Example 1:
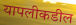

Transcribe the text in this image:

यापलीकडील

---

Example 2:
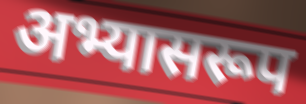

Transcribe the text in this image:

अभ्यासरूप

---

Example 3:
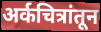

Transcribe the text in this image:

अर्कचित्रांतून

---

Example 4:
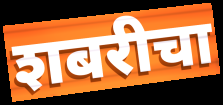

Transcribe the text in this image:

शबरीचा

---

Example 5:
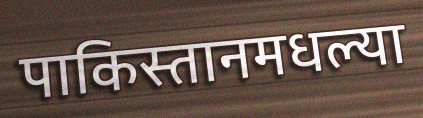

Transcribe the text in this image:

पाकिस्तानमधल्या